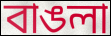
বাঙলা